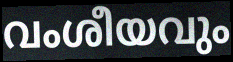
വംശീയവും